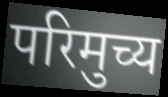
परिमुच्य